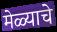
मेळ्याचे